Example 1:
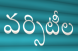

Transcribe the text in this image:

వర్సిటీల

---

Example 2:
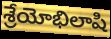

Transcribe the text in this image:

శ్రేయోభిలాషి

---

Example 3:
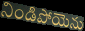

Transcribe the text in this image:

నిండిపోయెను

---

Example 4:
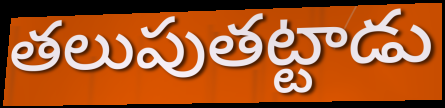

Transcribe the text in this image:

తలుపుతట్టాడు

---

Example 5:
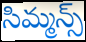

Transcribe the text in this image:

సిమ్మన్స్